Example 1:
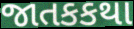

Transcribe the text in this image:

જાતકકથા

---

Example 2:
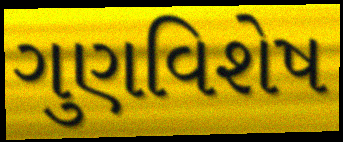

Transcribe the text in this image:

ગુણવિશેષ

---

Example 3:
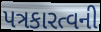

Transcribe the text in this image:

પત્રકારત્વની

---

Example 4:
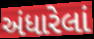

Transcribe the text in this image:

અંધારેલાં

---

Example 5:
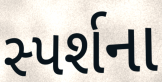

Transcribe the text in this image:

સ્પર્શના